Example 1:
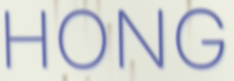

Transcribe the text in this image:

HONG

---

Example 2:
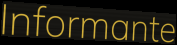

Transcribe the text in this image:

Informante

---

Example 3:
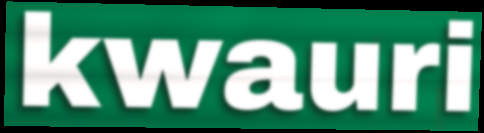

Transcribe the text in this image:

kwauri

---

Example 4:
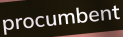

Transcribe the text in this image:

procumbent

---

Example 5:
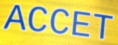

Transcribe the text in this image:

ACCET